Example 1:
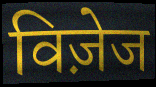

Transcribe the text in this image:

विज़ेज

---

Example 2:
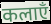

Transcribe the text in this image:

कलाएँ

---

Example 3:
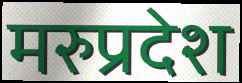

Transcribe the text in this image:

मरुप्रदेश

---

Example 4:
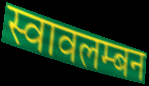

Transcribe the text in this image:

स्वावलम्बन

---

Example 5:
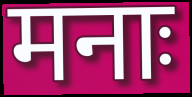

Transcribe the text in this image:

मनाः